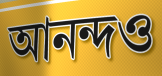
আনন্দও